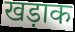
खड़ाक